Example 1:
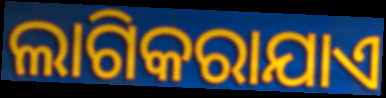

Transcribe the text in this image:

ଲାଗିକରାଯାଏ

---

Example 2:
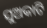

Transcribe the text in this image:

ସୁଅକାଟି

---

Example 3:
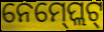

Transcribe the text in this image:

ନେମ୍‍ପ୍ଲେଟ୍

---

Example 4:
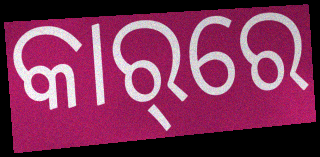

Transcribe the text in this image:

କାର୍‌ରେ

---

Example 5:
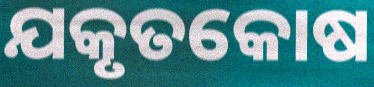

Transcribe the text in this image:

ଯକୃତକୋଷ